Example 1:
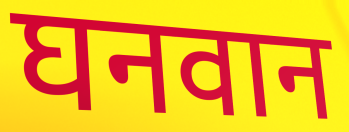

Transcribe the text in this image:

घनवान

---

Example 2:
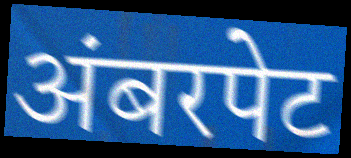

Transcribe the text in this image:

अंबरपेट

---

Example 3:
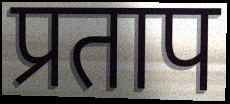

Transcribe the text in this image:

प्रताप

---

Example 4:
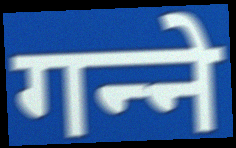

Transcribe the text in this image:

गन्‍ने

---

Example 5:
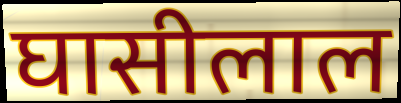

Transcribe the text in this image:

घासीलाल